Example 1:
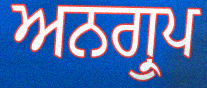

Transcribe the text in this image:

ਅਨਗ੍ਰੁਪ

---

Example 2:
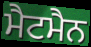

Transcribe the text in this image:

ਮੈਟਮੈਨ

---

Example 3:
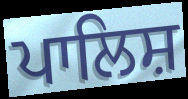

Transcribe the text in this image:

ਪਾਲਿਸ਼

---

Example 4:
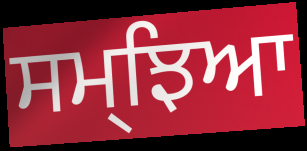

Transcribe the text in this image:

ਸਮ੍ਝਿਆ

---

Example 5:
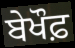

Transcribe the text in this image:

ਬੇਖੌਫ਼